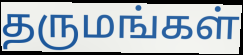
தருமங்கள்